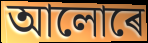
আলোৰে